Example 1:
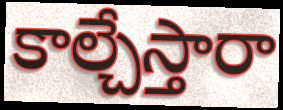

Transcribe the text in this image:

కాల్చేస్తారా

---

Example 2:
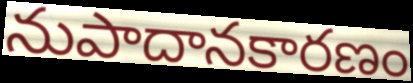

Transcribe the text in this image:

నుపాదానకారణం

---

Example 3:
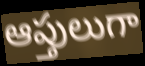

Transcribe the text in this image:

ఆప్తులుగా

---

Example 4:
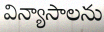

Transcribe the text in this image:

విన్యాసాలను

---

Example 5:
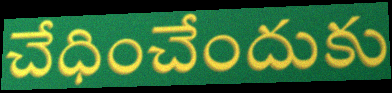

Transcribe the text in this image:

చేధించేందుకు